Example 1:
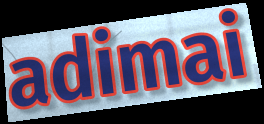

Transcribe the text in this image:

adimai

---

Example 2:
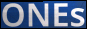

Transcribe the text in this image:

ONEs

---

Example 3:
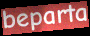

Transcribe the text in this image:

beparta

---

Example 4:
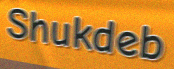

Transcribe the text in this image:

Shukdeb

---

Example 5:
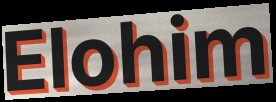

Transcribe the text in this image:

Elohim